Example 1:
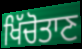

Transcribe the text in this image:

ਖਿੱਚੋਤਾਣ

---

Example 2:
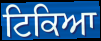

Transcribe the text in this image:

ਟਿਕਿਆ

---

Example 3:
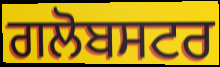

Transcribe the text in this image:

ਗਲੋਬਸਟਰ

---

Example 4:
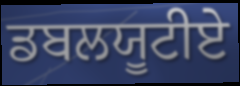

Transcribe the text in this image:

ਡਬਲਯੂਟੀਏ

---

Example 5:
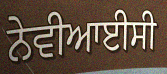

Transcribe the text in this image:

ਨੇਵੀਆਈਸੀ